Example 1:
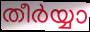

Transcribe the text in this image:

തീർയ്യാ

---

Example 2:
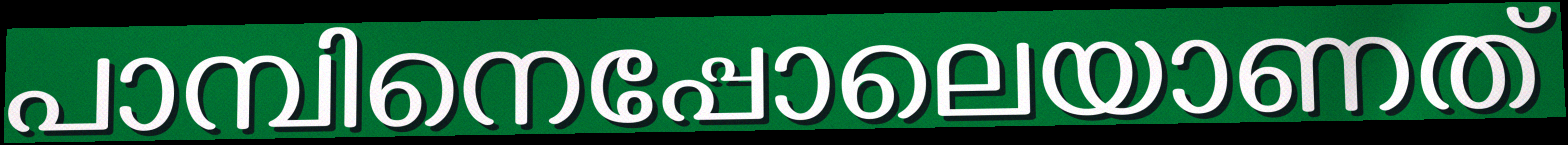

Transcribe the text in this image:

പാമ്പിനെപ്പോലെയാണത്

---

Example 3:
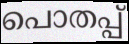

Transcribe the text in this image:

പൊതപ്പ്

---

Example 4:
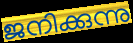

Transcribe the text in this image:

ജനിക്കുന്നു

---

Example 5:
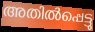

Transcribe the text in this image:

അതിൽപ്പെട്ടു